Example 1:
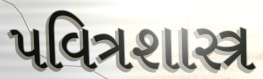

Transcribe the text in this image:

પવિત્રશાસ્ત્ર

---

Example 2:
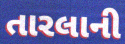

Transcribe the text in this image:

તારલાની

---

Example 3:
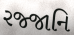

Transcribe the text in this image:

રજ્જાનિ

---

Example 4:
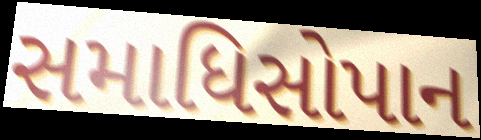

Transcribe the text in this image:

સમાધિસોપાન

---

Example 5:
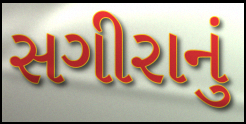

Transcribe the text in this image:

સગીરાનું